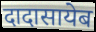
दादासायेब